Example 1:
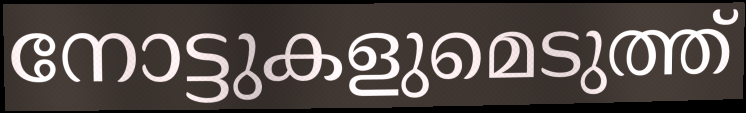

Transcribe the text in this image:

നോട്ടുകളുമെടുത്ത്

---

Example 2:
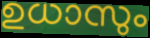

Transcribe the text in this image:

ഉധാസും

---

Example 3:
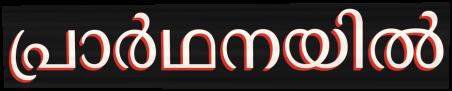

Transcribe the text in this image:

പ്രാർഥനയിൽ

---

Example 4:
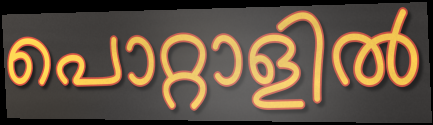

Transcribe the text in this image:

പൊറ്റാളിൽ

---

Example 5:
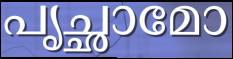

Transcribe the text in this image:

പൃച്ഛാമോ